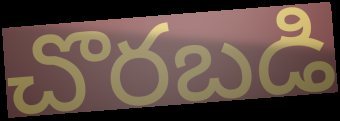
చొరబడి